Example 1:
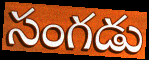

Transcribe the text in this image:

సంగడు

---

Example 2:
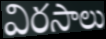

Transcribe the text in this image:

విరసాలు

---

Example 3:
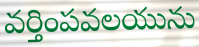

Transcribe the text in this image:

వర్తింపవలయును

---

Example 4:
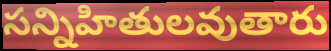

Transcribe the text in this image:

సన్నిహితులవుతారు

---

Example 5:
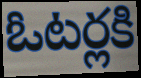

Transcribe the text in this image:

ఓటర్లకి